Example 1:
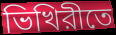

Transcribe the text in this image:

ভিখিরীতে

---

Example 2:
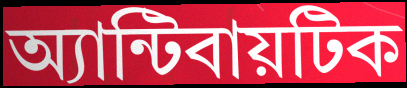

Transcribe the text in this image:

অ্যান্টিবায়টিক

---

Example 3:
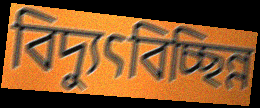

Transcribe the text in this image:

বিদ্যুৎবিচ্ছিন্ন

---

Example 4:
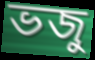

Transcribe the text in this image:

ভজু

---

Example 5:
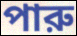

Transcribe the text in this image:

পারু